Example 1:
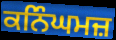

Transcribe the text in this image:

ਕਨਿੰਘਮਜ਼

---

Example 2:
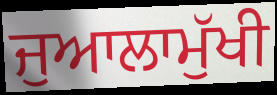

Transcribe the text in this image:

ਜੁਆਲਾਮੁੱਖੀ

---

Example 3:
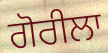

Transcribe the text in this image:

ਗੋਰੀਲਾ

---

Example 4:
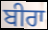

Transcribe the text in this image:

ਬੀਰਾ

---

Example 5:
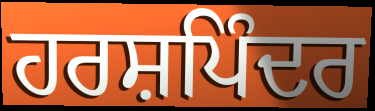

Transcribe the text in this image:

ਹਰਸ਼ਪਿੰਦਰ